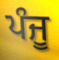
ਪੰਜੂ